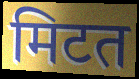
मिटत